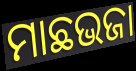
ମାଛଭଜା